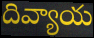
దివ్యాయ